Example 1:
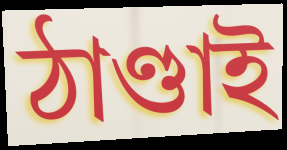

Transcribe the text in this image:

ঠাণ্ডাই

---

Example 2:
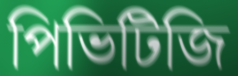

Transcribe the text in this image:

পিভিটিজি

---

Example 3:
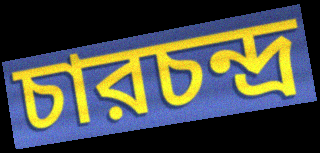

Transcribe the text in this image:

চারচন্দ্র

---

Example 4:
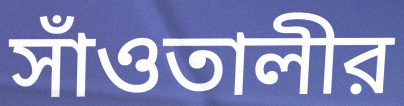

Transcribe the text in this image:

সাঁওতালীর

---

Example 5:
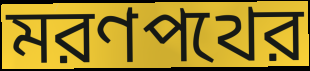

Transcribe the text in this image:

মরণপথের